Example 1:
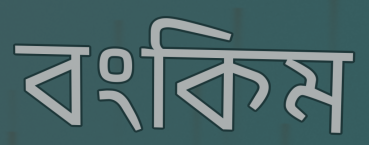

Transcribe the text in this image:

বংকিম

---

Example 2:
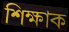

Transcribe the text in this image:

শিক্ষাক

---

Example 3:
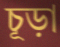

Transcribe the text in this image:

চূড়া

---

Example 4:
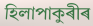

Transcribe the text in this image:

হিলাপাকুৰীৰ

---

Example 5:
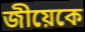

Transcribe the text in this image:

জীয়েকে